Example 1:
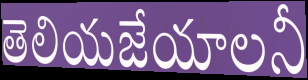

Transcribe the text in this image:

తెలియజేయాలనీ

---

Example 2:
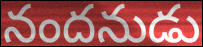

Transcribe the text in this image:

నందనుడు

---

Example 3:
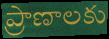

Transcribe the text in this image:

ప్రాణాలకు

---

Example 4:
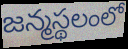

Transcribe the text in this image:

జన్మస్థలంలో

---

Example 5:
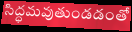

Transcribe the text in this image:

సిద్ధమవుతుండడంతో